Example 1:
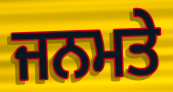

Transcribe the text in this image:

ਜਨਮਤੇ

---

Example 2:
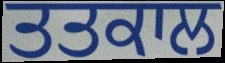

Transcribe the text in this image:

ਤਤਕਾਲ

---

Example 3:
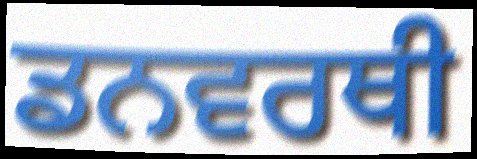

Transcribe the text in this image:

ਡਨਵਰਥੀ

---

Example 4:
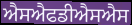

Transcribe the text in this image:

ਐਸਐਫਡੀਐਸਐਸ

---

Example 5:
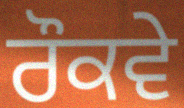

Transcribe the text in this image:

ਰੌਕਵੇ